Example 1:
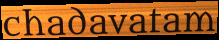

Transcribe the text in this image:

chadavatam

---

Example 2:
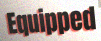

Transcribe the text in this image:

Equipped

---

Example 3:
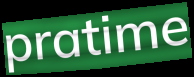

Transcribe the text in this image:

pratime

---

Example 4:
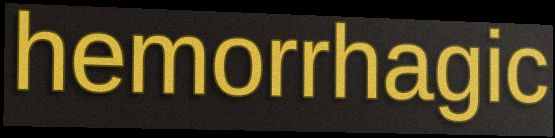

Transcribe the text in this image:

hemorrhagic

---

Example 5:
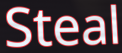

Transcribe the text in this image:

Steal